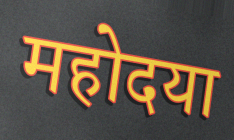
महोदया